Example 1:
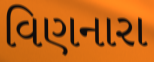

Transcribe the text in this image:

વિણનારા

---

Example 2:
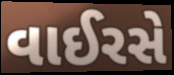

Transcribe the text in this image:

વાઈરસે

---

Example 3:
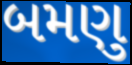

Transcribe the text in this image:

બમણુ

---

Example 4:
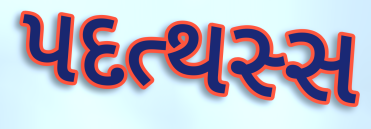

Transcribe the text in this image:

પદત્થસ્સ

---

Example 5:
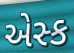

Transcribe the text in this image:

એસ્ક